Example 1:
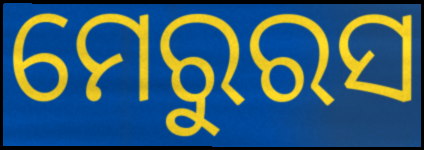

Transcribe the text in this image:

ମେରୁରସ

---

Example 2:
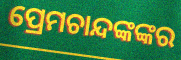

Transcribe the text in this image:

ପ୍ରେମଚାନ୍ଦଙ୍କଙ୍କର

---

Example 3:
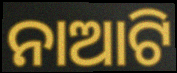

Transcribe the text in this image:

ନାଆଟି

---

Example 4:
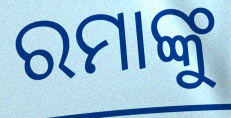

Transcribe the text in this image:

ରମାଙ୍କୁ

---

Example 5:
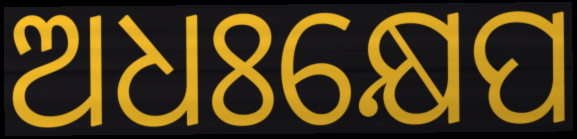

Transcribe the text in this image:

ଅଧଃକ୍ଷେପ